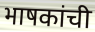
भाषकांची